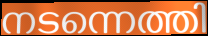
നടന്നെത്തി